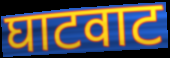
घाटवाट